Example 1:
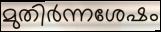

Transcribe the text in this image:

മുതിർന്നശേഷം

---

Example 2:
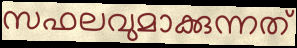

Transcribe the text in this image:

സഫലവുമാക്കുന്നത്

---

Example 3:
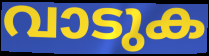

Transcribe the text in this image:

വാടുക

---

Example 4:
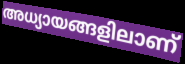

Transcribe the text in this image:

അധ്യായങ്ങളിലാണ്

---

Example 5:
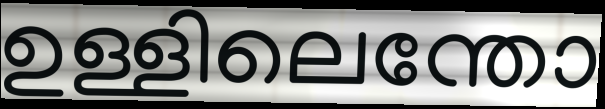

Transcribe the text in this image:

ഉള്ളിലെന്തോ